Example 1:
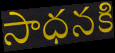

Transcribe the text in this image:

సాధనకి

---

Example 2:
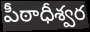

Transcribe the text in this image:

పీఠాధీశ్వర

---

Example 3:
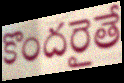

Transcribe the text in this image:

కొందరైతే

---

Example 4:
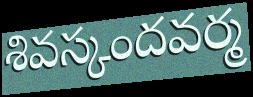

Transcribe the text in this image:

శివస్కందవర్మ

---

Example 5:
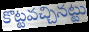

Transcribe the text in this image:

కొట్టవచ్చినట్టు